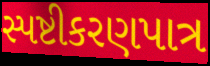
સ્પષ્ટીકરણપાત્ર